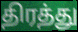
திரத்து